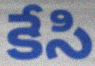
కేసి